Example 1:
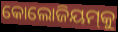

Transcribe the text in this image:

କୋଲୋଜିୟମ୍‍କୁ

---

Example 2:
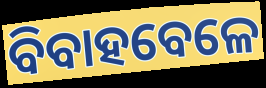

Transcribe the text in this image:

ବିବାହବେଳେ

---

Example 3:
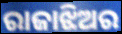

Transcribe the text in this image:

ରାଜାଝିଅର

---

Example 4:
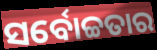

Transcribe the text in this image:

ସର୍ବୋଚ୍ଚତାର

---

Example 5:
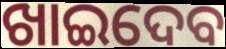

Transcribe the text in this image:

ଖାଇଦେବ